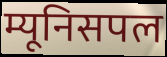
म्यूनिसपल